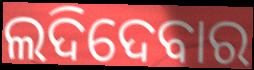
ଲଦିଦେବାର